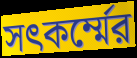
সৎকর্ম্মের